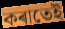
কৰাতেই